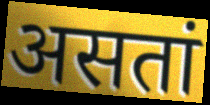
असतां